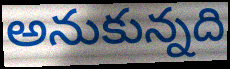
అనుకున్నది